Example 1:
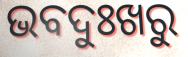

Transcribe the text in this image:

ଭବଦୁଃଖରୁ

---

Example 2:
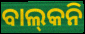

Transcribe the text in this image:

ବାଲ୍‍କନି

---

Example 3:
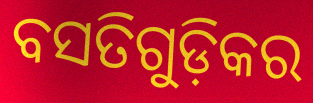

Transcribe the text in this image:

ବସତିଗୁଡ଼ିକର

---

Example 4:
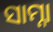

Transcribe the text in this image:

ସାମ୍ନା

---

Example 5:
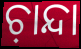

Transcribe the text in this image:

ଚ଼ାନ୍ଦା